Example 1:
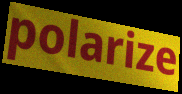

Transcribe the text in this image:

polarize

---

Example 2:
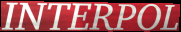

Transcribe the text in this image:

INTERPOL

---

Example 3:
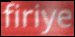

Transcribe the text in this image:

firiye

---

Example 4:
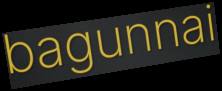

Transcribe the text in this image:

bagunnai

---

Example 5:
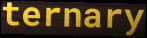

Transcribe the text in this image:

ternary